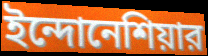
ইন্দোনেশিয়ার